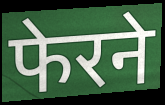
फेरने